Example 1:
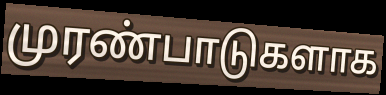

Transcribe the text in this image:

முரண்பாடுகளாக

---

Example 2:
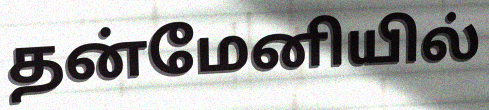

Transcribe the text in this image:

தன்மேனியில்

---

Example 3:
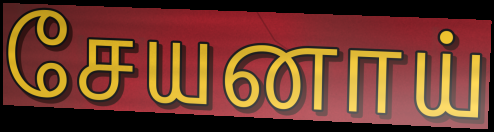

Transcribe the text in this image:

சேயனாய்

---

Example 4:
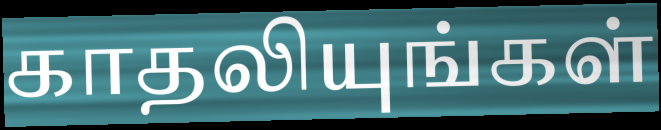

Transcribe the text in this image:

காதலியுங்கள்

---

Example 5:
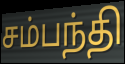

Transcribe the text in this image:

சம்பந்தி